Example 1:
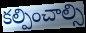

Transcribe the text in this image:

కల్పించాల్సి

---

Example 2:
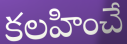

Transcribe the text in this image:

కలహించే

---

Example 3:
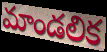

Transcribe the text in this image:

మాండలిక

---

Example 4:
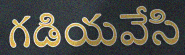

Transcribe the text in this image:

గడియవేసి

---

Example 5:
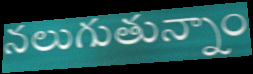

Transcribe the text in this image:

నలుగుతున్నాం